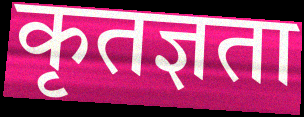
कृतज्ञता